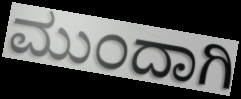
ಮುಂದಾಗಿ